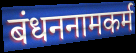
बंधननामकर्म